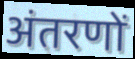
अंतरणों